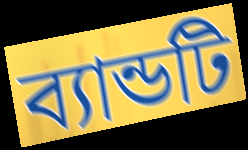
ব্যান্ডটি